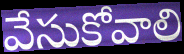
వేసుకోవాలి